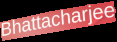
Bhattacharjee